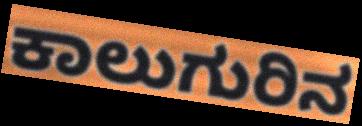
ಕಾಲುಗುರಿನ